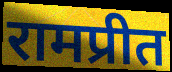
रामप्रीत